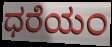
ಧರೆಯಂ